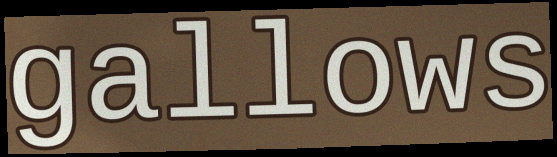
gallows